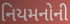
નિયમનોની